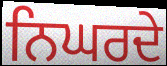
ਨਿਘਰਦੇ